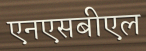
एनएसबीएल